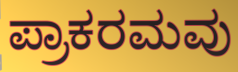
ಪ್ರಾಕರಮವು